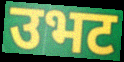
उभट